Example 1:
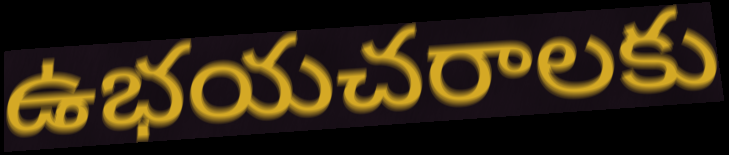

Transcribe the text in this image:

ఉభయచరాలకు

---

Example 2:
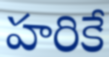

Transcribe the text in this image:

హరికే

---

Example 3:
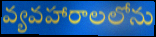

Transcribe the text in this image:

వ్యవహారాలలోను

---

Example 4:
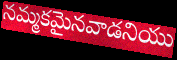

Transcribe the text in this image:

నమ్మకమైనవాడనియు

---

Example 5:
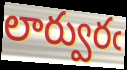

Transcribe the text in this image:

లార్వురఁ